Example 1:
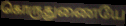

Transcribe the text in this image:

கொருதுணையே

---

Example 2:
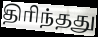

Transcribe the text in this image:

திரிந்தது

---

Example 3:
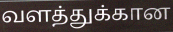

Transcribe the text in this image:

வளத்துக்கான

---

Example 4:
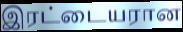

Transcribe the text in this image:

இரட்டையரான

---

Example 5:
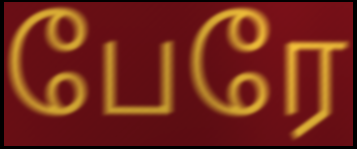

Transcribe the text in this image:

பேரே